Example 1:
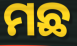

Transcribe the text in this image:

ମଛ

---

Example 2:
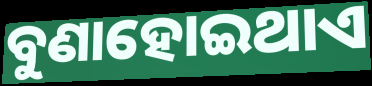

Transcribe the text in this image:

ବୁଣାହୋଇଥାଏ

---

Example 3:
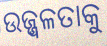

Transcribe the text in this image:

ଉଜ୍ଜ୍ୱଳତାକୁ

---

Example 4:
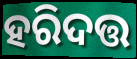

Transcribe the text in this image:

ହରିଦତ୍ତ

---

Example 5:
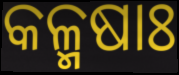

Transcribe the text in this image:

କଳ୍ମଷାଃ